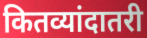
कितव्यांदातरी